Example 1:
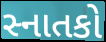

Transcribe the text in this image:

સ્નાતકો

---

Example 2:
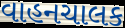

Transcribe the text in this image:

વાહનચાલક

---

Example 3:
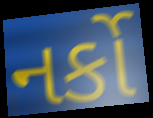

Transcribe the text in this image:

નર્કો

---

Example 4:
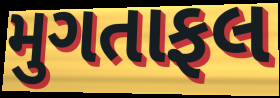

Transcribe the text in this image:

મુગતાફલ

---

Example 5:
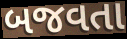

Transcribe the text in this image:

બજવતા